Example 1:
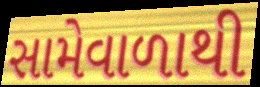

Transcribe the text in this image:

સામેવાળાથી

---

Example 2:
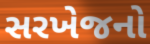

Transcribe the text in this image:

સરખેજનો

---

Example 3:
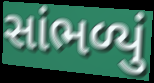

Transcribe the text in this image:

સાંભળ્યું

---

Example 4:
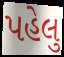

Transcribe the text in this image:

પહેલુ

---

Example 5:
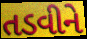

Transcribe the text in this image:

તડવીને